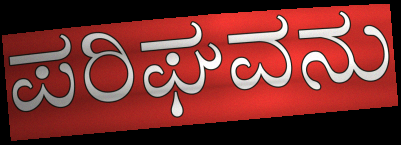
ಪರಿಘವನು